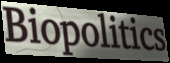
Biopolitics